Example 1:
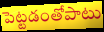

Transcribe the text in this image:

పెట్టడంతోపాటు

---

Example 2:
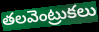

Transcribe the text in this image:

తలవెంట్రుకలు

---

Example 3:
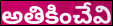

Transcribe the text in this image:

అతికించేవి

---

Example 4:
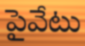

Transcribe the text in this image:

పైవేటు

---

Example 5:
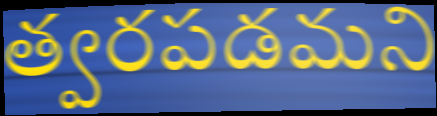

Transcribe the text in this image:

త్వరపడమని